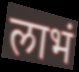
लाभं